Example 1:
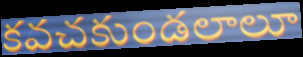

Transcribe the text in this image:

కవచకుండలాలూ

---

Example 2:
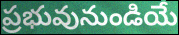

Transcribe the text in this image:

ప్రభువునుండియే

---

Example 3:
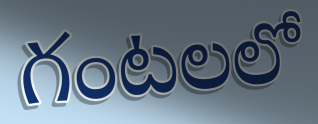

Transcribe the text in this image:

గంటలలో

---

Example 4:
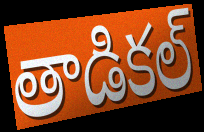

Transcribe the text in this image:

తాడికల్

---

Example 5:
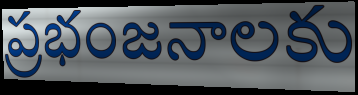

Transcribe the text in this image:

ప్రభంజనాలకు